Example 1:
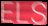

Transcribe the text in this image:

ELS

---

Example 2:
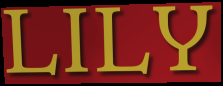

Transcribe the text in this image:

LILY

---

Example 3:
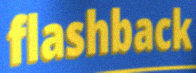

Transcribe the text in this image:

flashback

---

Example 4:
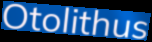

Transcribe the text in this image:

Otolithus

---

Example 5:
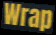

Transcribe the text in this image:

Wrap